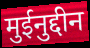
मुईनुद्दीन